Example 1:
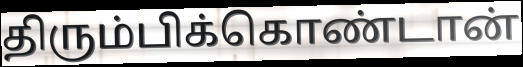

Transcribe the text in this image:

திரும்பிக்கொண்டான்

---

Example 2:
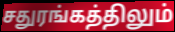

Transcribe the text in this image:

சதுரங்கத்திலும்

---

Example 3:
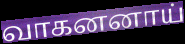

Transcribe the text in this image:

வாகனனாய்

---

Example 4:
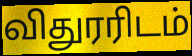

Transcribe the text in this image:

விதுரரிடம்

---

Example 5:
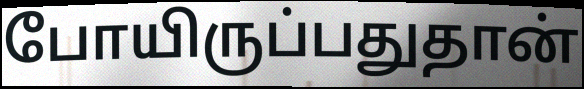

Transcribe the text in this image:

போயிருப்பதுதான்